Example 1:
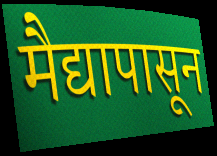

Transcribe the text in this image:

मैद्यापासून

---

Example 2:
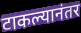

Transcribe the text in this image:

टाकल्यानंतर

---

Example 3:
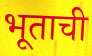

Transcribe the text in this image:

भूताची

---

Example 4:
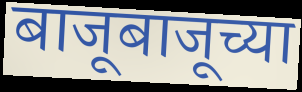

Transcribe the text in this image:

बाजूबाजूच्या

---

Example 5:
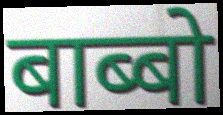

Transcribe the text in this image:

बाब्बो